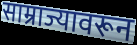
साम्राज्यावरून